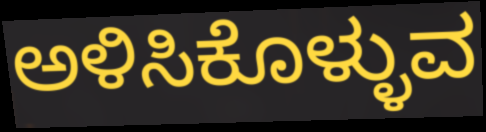
ಅಳಿಸಿಕೊಳ್ಳುವ